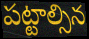
పట్టాల్సిన